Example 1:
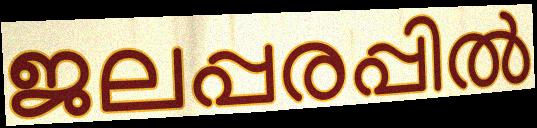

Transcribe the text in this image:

ജലപ്പരപ്പിൽ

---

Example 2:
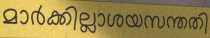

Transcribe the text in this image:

മാർക്കില്ലാശയസന്തതി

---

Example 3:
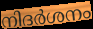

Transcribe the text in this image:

നിദർശനം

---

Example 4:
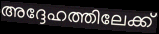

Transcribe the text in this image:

അദ്ദേഹത്തിലേക്ക്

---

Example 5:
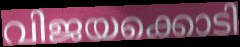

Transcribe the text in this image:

വിജയക്കൊടി